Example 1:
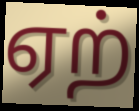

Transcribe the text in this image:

ஏற்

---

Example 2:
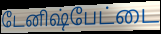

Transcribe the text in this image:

டேனிஷ்பேட்டை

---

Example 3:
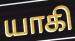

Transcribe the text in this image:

யாகி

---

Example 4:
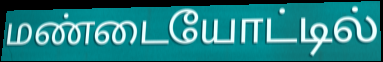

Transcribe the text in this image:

மண்டையோட்டில்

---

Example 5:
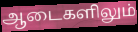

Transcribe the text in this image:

ஆடைகளிலும்